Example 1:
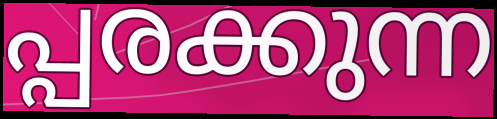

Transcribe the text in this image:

പ്പരക്കുന്ന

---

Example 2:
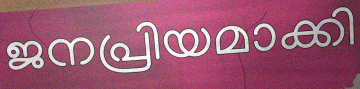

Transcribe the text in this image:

ജനപ്രിയമാക്കി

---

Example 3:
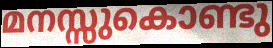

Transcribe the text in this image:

മനസ്സുകൊണ്ടു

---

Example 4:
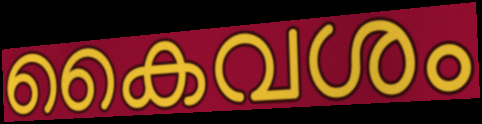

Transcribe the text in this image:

കൈവശം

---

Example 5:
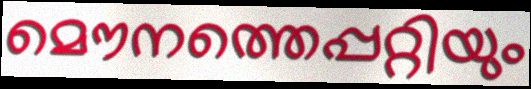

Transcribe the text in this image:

മൌനത്തെപ്പറ്റിയും